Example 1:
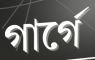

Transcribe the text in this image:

গাৰ্গে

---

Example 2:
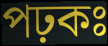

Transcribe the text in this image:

পঢ়কঃ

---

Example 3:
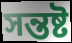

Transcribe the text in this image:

সন্তষ্ট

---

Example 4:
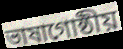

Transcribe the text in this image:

ভাষাগোষ্ঠীয়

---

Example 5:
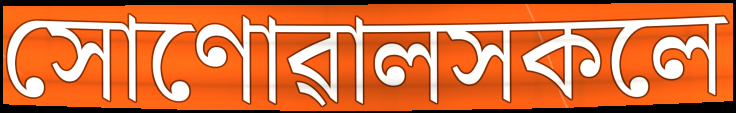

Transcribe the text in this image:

সোণোৱালসকলে